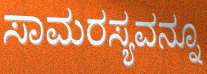
ಸಾಮರಸ್ಯವನ್ನೂ